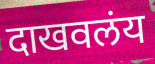
दाखवलंय